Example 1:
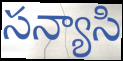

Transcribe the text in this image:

సన్యాసి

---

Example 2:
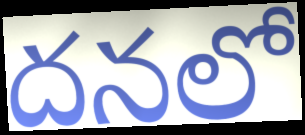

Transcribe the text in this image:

దనలో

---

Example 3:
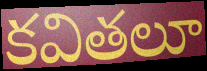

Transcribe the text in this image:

కవితలూ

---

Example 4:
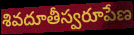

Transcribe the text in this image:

శివదూతీస్వరూపేణ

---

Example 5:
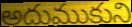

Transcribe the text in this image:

అదుముకుని